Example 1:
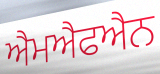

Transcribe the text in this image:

ਐਮਐਫਐਨ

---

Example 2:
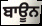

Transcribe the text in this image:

ਬਾਊਨ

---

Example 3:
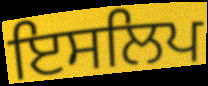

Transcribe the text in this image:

ਇਸਲਿਪ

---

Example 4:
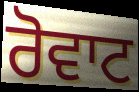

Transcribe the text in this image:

ਰੋਵਾਟ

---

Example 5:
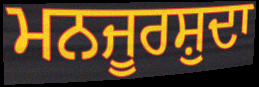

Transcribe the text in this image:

ਮਨਜੂਰਸ਼ੁਦਾ